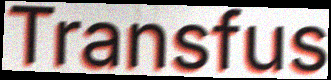
Transfus